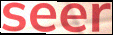
seer